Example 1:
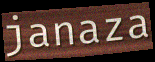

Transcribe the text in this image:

janaza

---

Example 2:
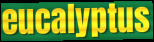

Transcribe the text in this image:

eucalyptus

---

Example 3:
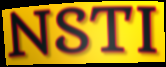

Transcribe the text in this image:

NSTI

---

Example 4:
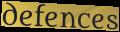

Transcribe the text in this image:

defences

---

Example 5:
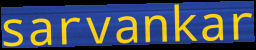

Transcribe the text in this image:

sarvankar